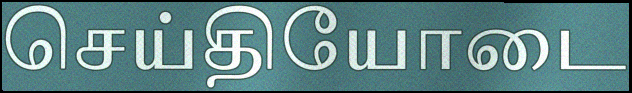
செய்தியோடை